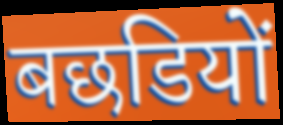
बछडियों